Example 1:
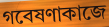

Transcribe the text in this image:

গবেষণাকাজে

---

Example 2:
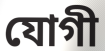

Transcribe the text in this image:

যোগী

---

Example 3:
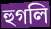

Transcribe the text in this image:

হুগলি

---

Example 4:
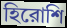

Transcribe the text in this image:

হিরোশি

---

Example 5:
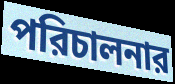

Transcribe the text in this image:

পরিচালনার